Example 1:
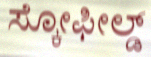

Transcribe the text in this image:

ಸ್ಕೋಫೀಲ್ಡ್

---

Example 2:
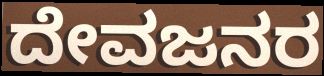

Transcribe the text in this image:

ದೇವಜನರ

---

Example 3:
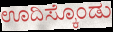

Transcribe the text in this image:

ಊದಿಸ್ಕೊಂಡು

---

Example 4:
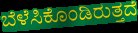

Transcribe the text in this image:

ಬೆಳೆಸಿಕೊಂಡಿರುತ್ತದೆ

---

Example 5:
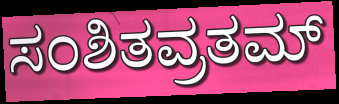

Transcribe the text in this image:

ಸಂಶಿತವ್ರತಮ್